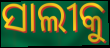
ସାଲୀକୁ